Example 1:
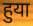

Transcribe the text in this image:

हुया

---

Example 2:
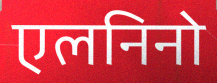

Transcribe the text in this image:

एलनिनो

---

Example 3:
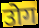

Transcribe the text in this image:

उोग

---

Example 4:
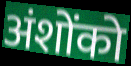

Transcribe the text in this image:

अंशोंको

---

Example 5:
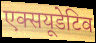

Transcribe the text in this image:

एक्सयूडेटिव